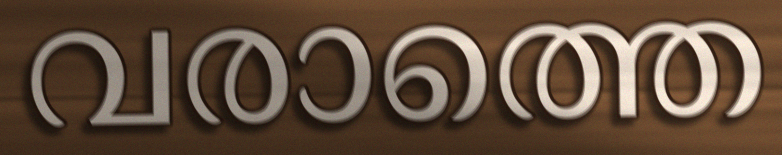
വരാത്തെ